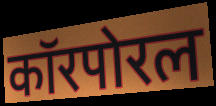
कॉरपोरल